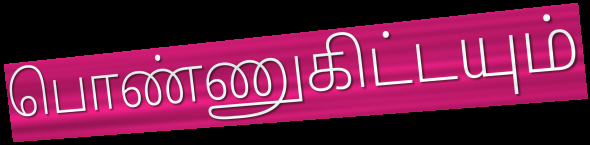
பொண்ணுகிட்டயும்